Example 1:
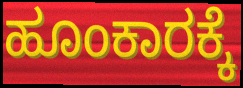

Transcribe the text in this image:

ಹೂಂಕಾರಕ್ಕೆ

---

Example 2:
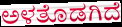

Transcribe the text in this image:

ಅಳತೊಡಗಿದೆ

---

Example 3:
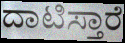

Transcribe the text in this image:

ದಾಟಿಸ್ತಾರೆ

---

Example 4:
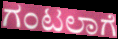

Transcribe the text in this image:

ಗಂಟಲಾಗೆ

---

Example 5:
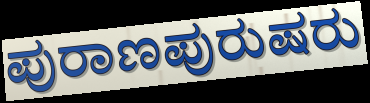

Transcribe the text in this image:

ಪುರಾಣಪುರುಷರು